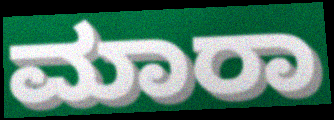
ಮಾರಾ